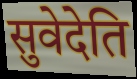
सुवेदेति